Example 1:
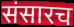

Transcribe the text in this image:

संसारच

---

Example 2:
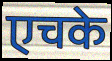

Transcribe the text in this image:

एचके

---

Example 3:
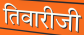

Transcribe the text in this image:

तिवारीजी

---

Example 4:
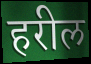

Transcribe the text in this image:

हरील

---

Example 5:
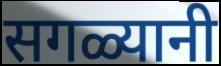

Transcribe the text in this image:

सगळ्यानी